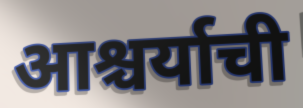
आश्चर्याची